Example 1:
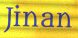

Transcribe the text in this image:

Jinan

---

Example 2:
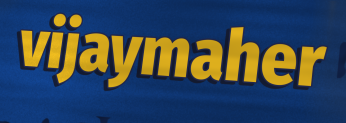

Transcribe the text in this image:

vijaymaher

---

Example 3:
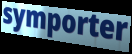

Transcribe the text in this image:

symporter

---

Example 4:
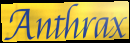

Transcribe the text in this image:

Anthrax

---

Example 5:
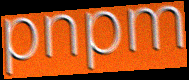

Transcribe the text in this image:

pnpm